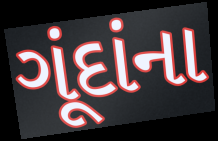
ગૂંદાંના